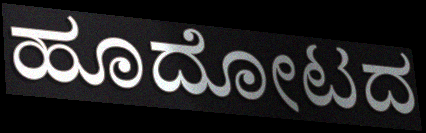
ಹೂದೋಟದ